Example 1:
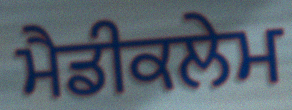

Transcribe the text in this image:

ਮੈਡੀਕਲੇਮ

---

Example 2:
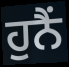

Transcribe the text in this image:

ਹੁਨੈਂ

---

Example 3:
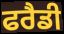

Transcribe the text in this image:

ਫਰੈਡੀ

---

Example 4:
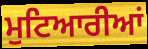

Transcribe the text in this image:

ਮੁਟਿਆਰੀਆਂ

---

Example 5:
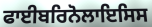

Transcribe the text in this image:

ਫਾਈਬਰਿਨੋਲਾਇਸਿਸ